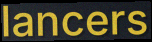
lancers